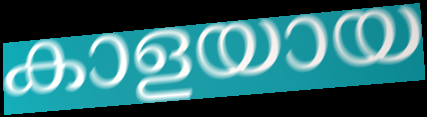
കാളയായ